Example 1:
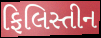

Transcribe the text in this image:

ફિલિસ્તીન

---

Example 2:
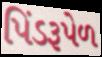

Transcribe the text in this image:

પિંડરૂપેળ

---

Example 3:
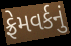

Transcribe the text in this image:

ફ્રેમવર્કનું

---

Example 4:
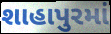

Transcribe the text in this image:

શાહાપુરમાં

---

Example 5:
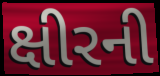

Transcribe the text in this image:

ક્ષીરની